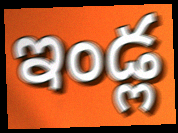
ఇండ్ల